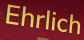
Ehrlich